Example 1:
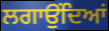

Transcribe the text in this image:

ਲਗਾਉੰਦਿਆਂ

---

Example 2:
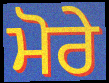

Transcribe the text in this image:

ਮੋਰੇ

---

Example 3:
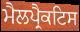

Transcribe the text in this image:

ਮੈਲਪ੍ਰੈਕਟਿਸ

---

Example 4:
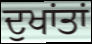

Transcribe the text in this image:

ਦੁਖਾਂਤਾਂ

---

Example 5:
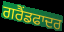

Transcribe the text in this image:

ਗਰੈਂਡਫਾਦਰ